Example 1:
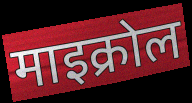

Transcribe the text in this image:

माइक्रोल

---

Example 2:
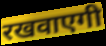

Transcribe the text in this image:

रखवाएगी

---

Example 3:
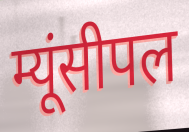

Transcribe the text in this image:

म्यूंसीपल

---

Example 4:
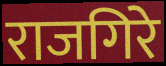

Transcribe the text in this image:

राजगिरे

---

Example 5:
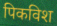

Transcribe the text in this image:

पिकविश